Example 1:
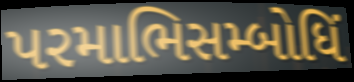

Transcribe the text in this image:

પરમાભિસમ્બોધિં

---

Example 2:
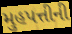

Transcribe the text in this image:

મુહપત્તીની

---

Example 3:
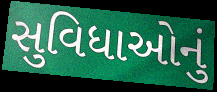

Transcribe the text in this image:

સુવિધાઓનું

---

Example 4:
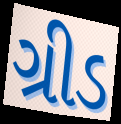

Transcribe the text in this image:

ગ્રીડ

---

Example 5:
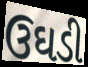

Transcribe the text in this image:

ઉઘડી